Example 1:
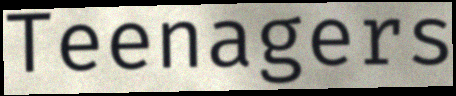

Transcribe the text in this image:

Teenagers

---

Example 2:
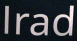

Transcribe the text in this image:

Irad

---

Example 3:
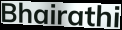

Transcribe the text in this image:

Bhairathi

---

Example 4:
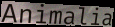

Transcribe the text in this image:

Animalia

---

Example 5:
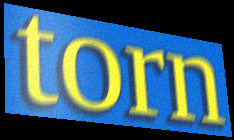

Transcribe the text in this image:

torn